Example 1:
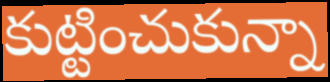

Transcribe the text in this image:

కుట్టించుకున్నా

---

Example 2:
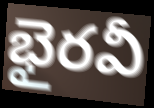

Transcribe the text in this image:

భైరవీ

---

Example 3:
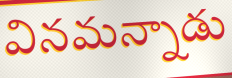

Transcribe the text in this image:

వినమన్నాడు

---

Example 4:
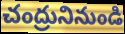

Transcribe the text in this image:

చంద్రునినుండి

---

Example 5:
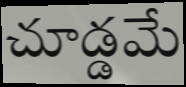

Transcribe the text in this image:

చూడ్డమే